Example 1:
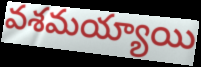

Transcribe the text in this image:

వశమయ్యాయి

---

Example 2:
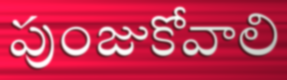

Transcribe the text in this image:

పుంజుకోవాలి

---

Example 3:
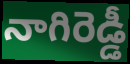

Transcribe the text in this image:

నాగిరెడ్డీ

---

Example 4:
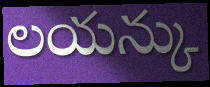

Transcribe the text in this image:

లయన్కు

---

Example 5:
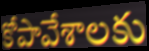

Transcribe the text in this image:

కోపావేశాలకు